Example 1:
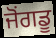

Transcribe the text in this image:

ਜੋਂਗਡੂ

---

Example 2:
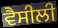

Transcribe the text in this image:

ਵੈਸੀਲੀ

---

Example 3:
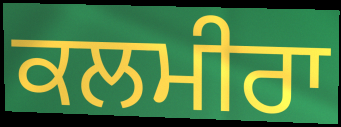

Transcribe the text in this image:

ਕਲਮੀਰਾ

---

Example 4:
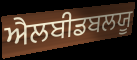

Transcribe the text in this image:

ਐਲਬੀਡਬਲਯੂ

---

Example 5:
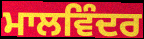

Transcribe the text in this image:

ਮਾਲਵਿੰਦਰ